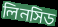
লিনসিড